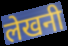
लेखनी